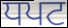
ਧਪਟ